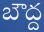
బౌద్ద